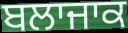
ਬਲਾਜਾਕ